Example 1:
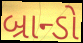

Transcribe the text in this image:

બ્રાન્ડો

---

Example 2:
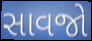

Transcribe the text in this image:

સાવજો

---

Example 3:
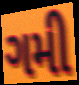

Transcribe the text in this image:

ગમી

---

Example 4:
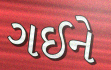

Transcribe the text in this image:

ગઈને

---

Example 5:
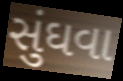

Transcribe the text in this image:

સુંઘવા